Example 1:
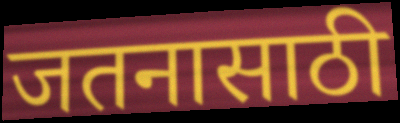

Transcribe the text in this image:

जतनासाठी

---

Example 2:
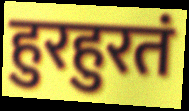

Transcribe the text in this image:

हुरहुरतं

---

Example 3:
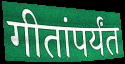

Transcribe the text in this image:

गीतांपर्यंत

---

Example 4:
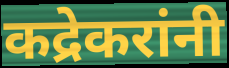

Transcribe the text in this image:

कद्रेकरांनी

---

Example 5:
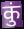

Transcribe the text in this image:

कुं